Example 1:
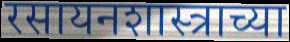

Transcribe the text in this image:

रसायनशास्त्राच्या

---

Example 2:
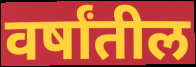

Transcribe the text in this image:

वर्षांतील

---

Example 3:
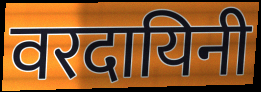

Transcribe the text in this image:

वरदायिनी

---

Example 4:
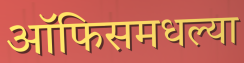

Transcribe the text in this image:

ऑफिसमधल्या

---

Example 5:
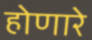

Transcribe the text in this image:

होणारे